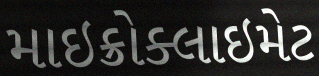
માઇક્રોક્લાઇમેટ